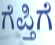
ಗೆಪ್ತಿಗೆ